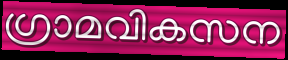
ഗ്രാമവികസന